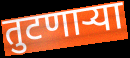
तुटणार्‍या